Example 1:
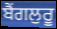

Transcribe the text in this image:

ਬੈਂਗਲੁਰੂ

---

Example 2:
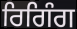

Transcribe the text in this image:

ਰਿਗਿੰਗ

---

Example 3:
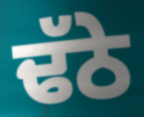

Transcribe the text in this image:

ਢੱਠੇ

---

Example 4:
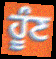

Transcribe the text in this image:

ਹੂੰਣ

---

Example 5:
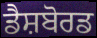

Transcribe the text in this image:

ਡੈਸ਼ਬੋਰਡ